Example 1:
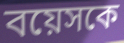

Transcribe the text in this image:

বয়েসকে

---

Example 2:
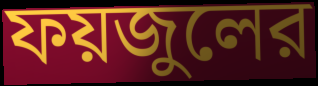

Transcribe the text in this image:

ফয়জুলের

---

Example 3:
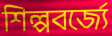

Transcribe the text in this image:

শিল্পবর্জ্যে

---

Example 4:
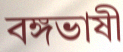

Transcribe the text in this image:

বঙ্গভাষী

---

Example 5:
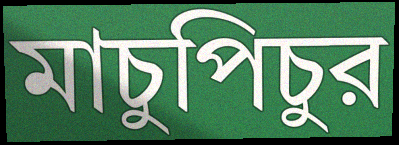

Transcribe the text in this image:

মাচুপিচুর